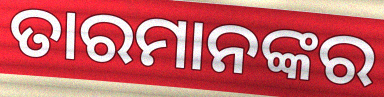
ତାରମାନଙ୍କର